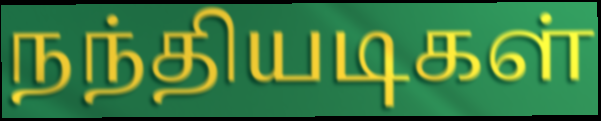
நந்தியடிகள்